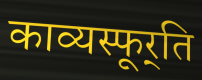
काव्यस्फूर्ति